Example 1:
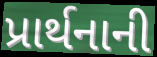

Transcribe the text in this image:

પ્રાર્થનાની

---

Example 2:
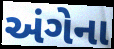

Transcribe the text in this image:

અંગેના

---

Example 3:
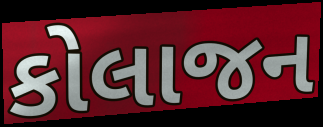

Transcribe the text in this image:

કોલાજન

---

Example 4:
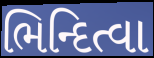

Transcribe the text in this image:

ભિન્દિત્વા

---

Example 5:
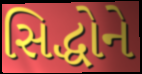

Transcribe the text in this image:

સિદ્ધોને